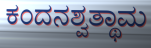
ಕಂದನಶ್ವತ್ಥಾಮ